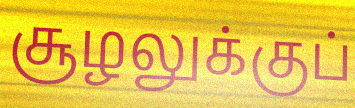
சூழலுக்குப்